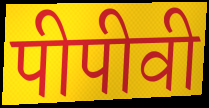
पीपीवी